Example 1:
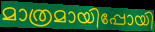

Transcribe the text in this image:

മാത്രമായിപ്പോയി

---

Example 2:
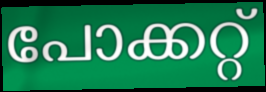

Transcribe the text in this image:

പോക്കറ്റ്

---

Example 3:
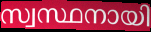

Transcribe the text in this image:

സ്വസ്ഥനായി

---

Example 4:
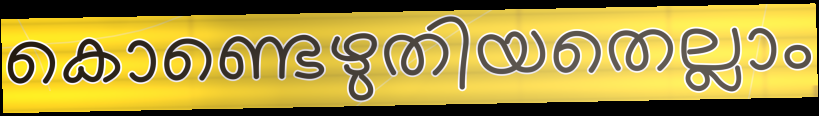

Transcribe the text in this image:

കൊണ്ടെഴുതിയതെല്ലാം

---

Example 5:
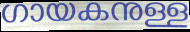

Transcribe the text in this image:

ഗായകനുള്ള